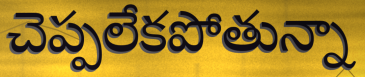
చెప్పలేకపోతున్నా